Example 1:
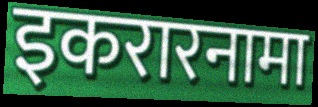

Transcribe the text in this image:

इकरारनामा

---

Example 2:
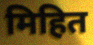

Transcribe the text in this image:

मिहित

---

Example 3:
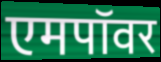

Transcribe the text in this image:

एमपॉवर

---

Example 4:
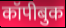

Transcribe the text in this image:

कॉपीबुक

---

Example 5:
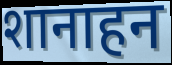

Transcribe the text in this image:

शानाहन